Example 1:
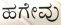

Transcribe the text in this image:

ಹಗೇವು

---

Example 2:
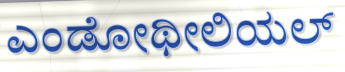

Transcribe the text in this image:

ಎಂಡೋಥೀಲಿಯಲ್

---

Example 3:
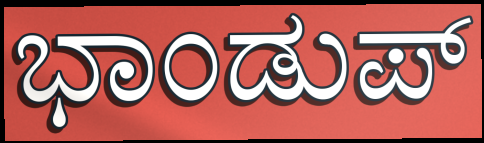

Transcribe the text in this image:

ಭಾಂಡುಪ್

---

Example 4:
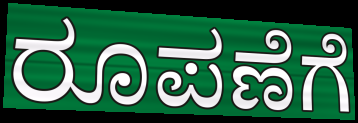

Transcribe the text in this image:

ರೂಪಣೆಗೆ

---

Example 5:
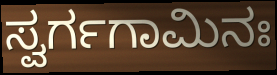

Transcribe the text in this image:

ಸ್ವರ್ಗಗಾಮಿನಃ